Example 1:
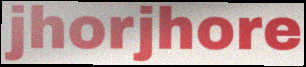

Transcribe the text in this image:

jhorjhore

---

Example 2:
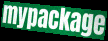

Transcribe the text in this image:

mypackage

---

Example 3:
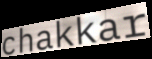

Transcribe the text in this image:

chakkar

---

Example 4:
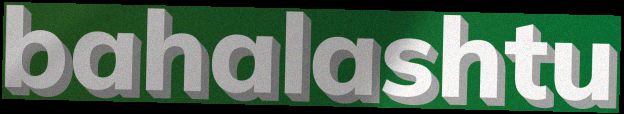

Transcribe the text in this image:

bahalashtu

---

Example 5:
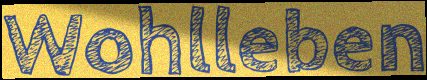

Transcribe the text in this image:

Wohlleben